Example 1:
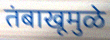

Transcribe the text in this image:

तंबाखूमुळे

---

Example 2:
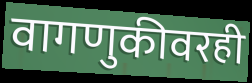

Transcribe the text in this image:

वागणुकीवरही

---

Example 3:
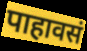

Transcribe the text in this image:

पाहावसं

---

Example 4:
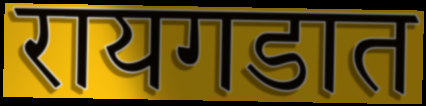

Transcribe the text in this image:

रायगडात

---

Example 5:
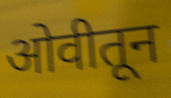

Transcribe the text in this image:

ओवीतून